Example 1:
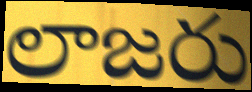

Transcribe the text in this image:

లాజరు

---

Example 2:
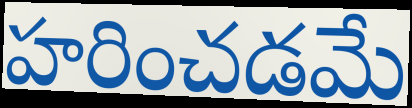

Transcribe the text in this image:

హరించడమే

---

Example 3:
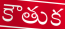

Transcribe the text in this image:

కౌతుక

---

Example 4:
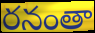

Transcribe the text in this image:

రనంతా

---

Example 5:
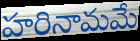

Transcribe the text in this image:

హరినామమే